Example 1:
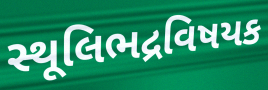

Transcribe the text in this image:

સ્થૂલિભદ્રવિષયક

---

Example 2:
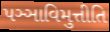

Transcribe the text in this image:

પઞ્ઞાવિમુત્તીતિ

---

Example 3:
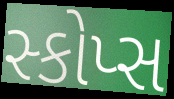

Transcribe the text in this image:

સ્કોપ્સ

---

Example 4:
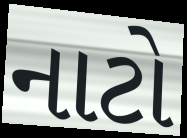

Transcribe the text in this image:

નાટો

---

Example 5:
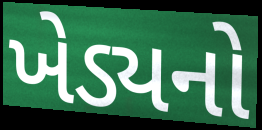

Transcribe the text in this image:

ખેડ્યનો